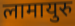
लामायुरु